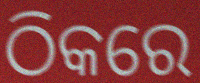
ଠିକରେ